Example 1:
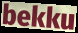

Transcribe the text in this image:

bekku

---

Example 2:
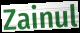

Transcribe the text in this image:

Zainul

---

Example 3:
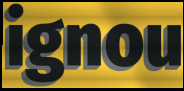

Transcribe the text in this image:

ignou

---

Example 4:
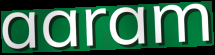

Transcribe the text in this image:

aaram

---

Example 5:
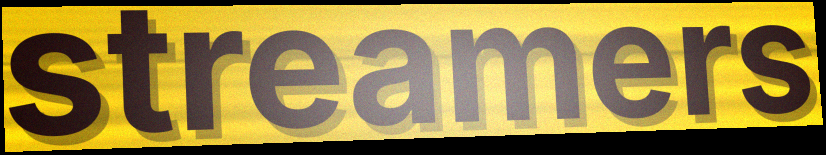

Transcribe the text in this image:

streamers